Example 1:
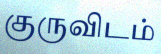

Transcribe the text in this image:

குருவிடம்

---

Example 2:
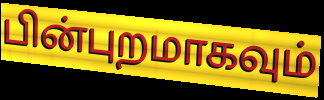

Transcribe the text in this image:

பின்புறமாகவும்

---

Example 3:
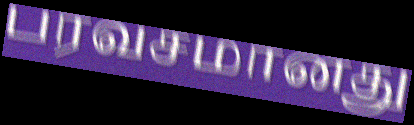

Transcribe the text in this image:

பரவசமானது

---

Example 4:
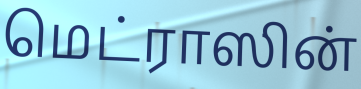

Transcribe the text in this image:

மெட்ராஸின்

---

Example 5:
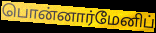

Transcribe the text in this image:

பொன்னார்மேனிப்